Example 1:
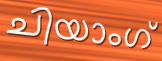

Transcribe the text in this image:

ചിയാംഗ്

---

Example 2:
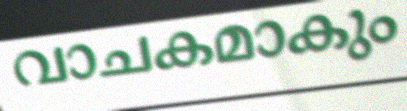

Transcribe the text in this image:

വാചകമാകും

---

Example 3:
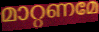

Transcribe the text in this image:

മാറ്റണമേ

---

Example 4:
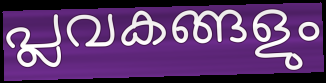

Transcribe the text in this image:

പ്ലവകങ്ങളും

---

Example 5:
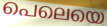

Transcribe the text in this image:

പെലെയെ